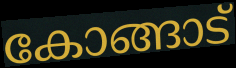
കോങ്ങാട്